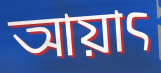
আয়াৎ